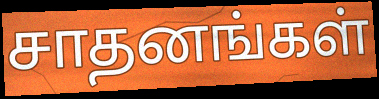
சாதனங்கள்